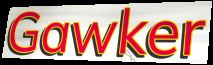
Gawker